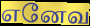
எனேவ